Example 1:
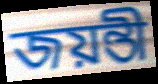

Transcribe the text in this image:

জয়ন্তী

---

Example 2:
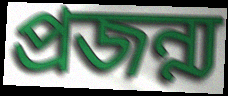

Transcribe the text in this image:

প্ৰজন্ম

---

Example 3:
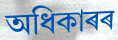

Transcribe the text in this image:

অধিকাৰৰ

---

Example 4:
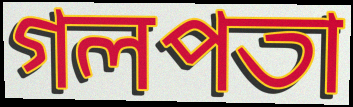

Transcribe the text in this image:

গলপতা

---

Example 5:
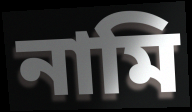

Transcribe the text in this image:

নামি